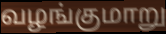
வழங்குமாறு